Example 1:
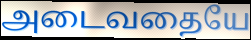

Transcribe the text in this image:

அடைவதையே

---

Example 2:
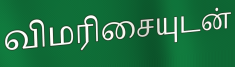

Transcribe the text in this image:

விமரிசையுடன்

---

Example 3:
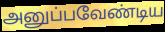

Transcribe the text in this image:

அனுப்பவேண்டிய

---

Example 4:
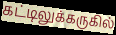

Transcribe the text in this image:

கட்டிலுக்கருகில்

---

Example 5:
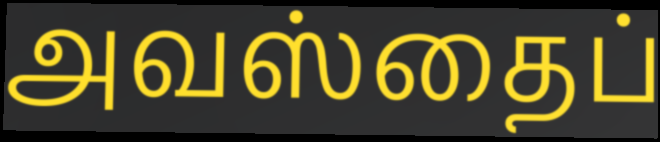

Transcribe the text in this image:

அவஸ்தைப்